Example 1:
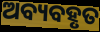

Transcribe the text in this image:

ଅବ୍ୟବହୃତ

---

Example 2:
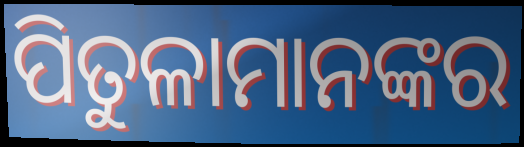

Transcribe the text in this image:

ପିତୁଳାମାନଙ୍କର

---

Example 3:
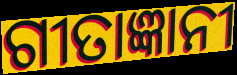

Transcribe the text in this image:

ଗୀତାଜ୍ଞାନୀ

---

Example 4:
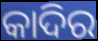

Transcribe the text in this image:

କାଦିର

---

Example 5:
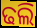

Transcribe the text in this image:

ଢଲି